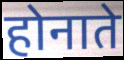
होनाते